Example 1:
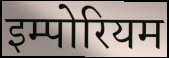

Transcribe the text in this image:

इम्पोरियम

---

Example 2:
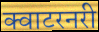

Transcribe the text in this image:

क्वाटरनरी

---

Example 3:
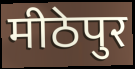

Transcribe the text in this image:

मीठेपुर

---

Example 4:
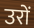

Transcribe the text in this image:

उरों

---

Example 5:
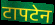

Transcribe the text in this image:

टापटेन